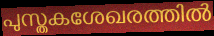
പുസ്തകശേഖരത്തിൽ